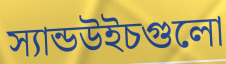
স্যান্ডউইচগুলো